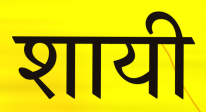
शायी